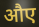
औए